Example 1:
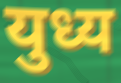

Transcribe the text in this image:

युध्य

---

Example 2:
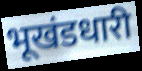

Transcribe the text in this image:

भूखंडधारी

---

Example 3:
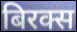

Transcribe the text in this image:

बिरक्स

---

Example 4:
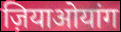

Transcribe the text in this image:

ज़ियाओयांग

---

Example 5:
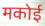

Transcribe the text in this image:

मकोई